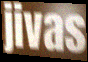
jivas